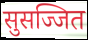
सुसज्जित